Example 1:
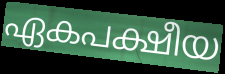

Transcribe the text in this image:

ഏകപക്ഷീയ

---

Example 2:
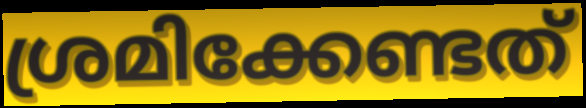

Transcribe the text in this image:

ശ്രമിക്കേണ്ടത്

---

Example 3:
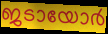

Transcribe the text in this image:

ജടായോർ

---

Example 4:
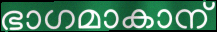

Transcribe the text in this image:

ഭാഗമാകാന്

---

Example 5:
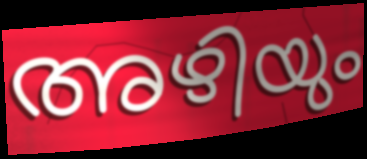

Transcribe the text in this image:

അഴിയും